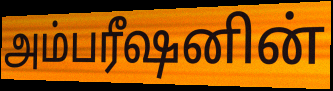
அம்பரீஷனின்